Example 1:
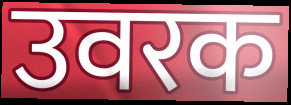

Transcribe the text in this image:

उवरक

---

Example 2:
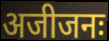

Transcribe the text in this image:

अजीजनः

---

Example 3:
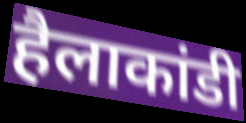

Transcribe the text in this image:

हैलाकांडी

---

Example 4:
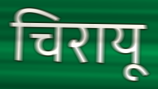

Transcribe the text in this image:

चिरायू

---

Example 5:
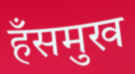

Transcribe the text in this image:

हँसमुख